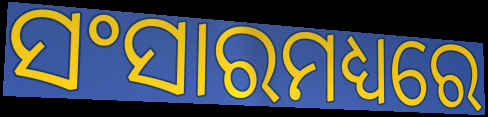
ସଂସାରମଧ୍ୟରେ